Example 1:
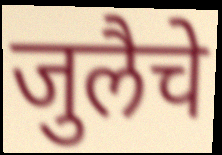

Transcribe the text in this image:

जुलैचे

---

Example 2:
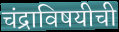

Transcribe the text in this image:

चंद्राविषयीची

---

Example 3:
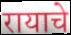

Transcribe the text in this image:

रायाचे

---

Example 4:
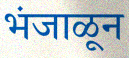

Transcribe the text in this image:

भंजाळून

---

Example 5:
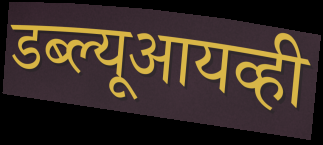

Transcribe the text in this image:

डब्ल्यूआयव्ही